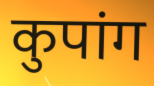
कुपांग